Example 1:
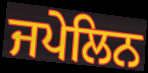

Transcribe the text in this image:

ਜਪੇਲਿਨ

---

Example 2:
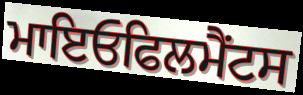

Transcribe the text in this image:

ਮਾਇਓਫਿਲਮੈਂਟਸ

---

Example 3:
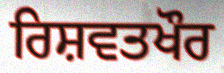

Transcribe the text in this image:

ਰਿਸ਼ਵਤਖੌਰ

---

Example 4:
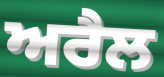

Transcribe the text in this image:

ਅਰੈਲ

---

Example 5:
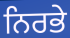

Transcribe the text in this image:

ਨਿਰਭੇ